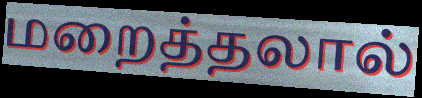
மறைத்தலால்